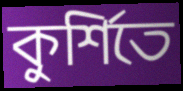
কুর্শিতে